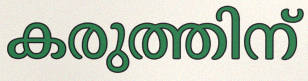
കരുത്തിന്